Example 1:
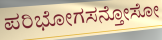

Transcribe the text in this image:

ಪರಿಭೋಗಸನ್ತೋಸೋ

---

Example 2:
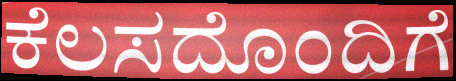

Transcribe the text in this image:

ಕೆಲಸದೊಂದಿಗೆ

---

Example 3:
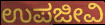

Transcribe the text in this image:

ಉಪಜೀವಿ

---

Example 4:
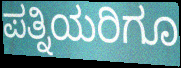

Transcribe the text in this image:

ಪತ್ನಿಯರಿಗೂ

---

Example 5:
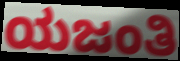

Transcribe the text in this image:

ಯಜಂತಿ